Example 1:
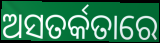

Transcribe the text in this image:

ଅସତର୍କତାରେ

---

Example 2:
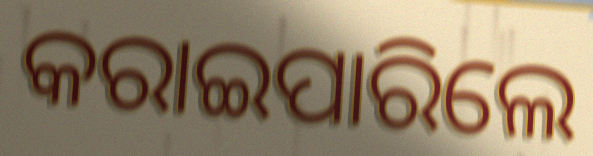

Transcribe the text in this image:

କରାଇପାରିଲେ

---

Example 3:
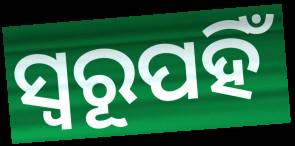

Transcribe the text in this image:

ସ୍ୱରୂପହିଁ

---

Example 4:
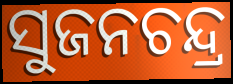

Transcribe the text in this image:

ସୁଜନଚନ୍ଦ୍ର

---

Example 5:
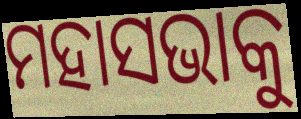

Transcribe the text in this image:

ମହାସଭାକୁ